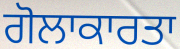
ਗੋਲਾਕਾਰਤਾ